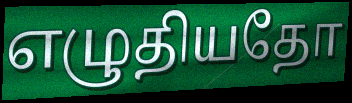
எழுதியதோ